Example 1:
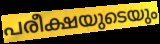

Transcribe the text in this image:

പരീക്ഷയുടെയും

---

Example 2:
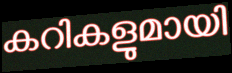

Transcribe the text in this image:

കറികളുമായി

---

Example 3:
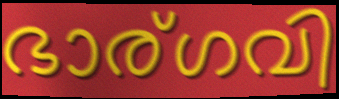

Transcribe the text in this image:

ഭാര്ഗവി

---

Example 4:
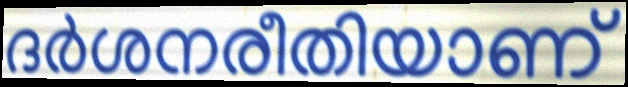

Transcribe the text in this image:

ദർശനരീതിയാണ്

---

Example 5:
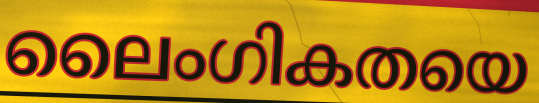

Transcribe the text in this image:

ലൈംഗികതയെ